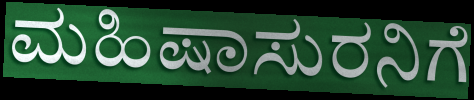
ಮಹಿಷಾಸುರನಿಗೆ